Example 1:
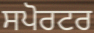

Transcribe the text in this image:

ਸਪੋਰਟਰ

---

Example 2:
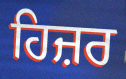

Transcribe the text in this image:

ਹਿਜ਼ਰ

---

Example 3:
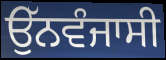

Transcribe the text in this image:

ਉੱਨਵੰਜਾਸੀ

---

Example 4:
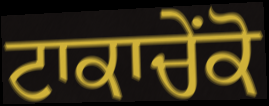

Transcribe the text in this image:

ਟਾਕਾਚੇਂਕੋ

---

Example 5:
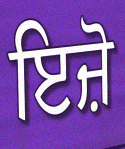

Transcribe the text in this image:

ਇਜ਼ੋ